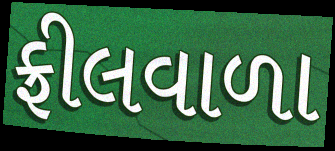
ફ્રીલવાળા